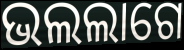
ଭଲଲାଗେ